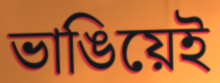
ভাঙিয়েই